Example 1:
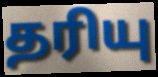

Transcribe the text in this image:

தரியு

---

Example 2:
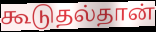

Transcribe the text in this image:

கூடுதல்தான்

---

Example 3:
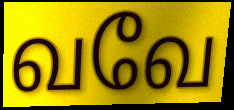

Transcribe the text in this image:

வவே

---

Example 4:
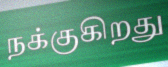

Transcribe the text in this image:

நக்குகிறது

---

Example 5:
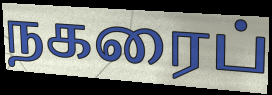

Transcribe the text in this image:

நகரைப்